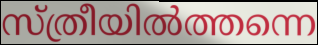
സ്ത്രീയിൽത്തന്നെ